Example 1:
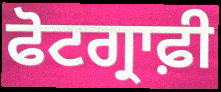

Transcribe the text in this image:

ਫੋਟਗ੍ਰਾਫ਼ੀ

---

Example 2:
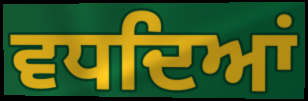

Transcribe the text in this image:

ਵਧਦਿਆਂ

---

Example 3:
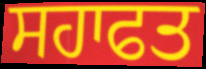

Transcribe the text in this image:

ਸਹਾਫਤ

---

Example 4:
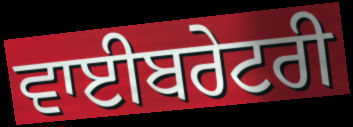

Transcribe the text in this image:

ਵਾਈਬਰੇਟਰੀ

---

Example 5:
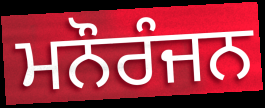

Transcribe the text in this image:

ਮਨੌਰੰਜਨ